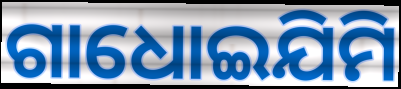
ଗାଧୋଇଯିମି